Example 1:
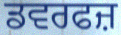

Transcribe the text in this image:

ਡਵਰਫਜ਼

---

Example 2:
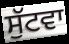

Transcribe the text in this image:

ਸੁੱਟਵਾ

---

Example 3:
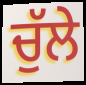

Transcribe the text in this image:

ਚੁੱਲੇ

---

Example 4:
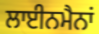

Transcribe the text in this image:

ਲਾਈਨਮੈਨਾਂ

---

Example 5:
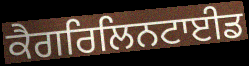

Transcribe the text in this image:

ਕੈਗਰਿਲਿਨਟਾਈਡ